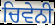
ਚਿਵੇਨੀ